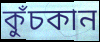
কুঁচকান